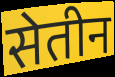
सेतीन